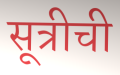
सूत्रीची